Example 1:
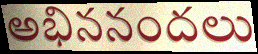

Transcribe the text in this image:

అభిననందలు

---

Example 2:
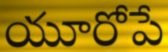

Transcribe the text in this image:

యూరోపే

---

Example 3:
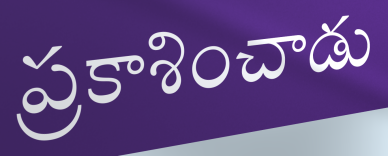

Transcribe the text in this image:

ప్రకాశించాడు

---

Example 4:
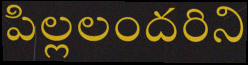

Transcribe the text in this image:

పిల్లలందరిని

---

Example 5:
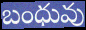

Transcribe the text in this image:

బంధువు